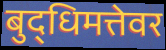
बुद्धिमत्तेवर